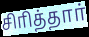
சிரித்தார்